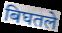
बिघतले